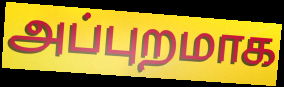
அப்புறமாக